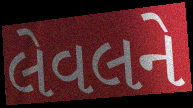
લેવલને